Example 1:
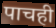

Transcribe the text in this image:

पाचही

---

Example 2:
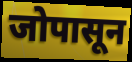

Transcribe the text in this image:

जोपासून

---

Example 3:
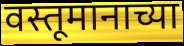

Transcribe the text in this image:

वस्तूमानाच्या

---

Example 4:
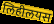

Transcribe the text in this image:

लिहीलयस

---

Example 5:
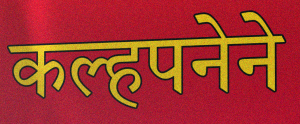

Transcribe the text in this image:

कल्हपनेने